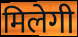
मिलेगी